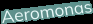
Aeromonas